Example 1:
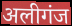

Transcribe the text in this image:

अलीगंज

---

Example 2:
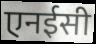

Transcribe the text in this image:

एनईसी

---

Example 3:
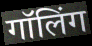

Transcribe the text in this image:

गॉलिंग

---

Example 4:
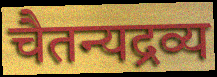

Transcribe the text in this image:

चैतन्यद्रव्य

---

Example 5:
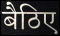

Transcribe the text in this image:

बैठिए